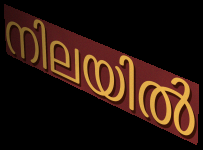
നിലയിൽ